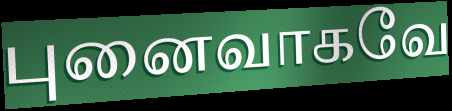
புனைவாகவே